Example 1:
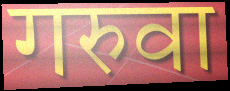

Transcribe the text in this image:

गरुवा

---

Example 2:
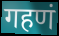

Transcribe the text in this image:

गहणं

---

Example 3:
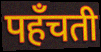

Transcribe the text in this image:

पहँचती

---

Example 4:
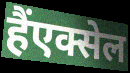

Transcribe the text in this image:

हैंएक्सेल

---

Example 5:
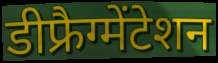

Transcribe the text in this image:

डीफ्रैग्मेंटेशन